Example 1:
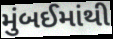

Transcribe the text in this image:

મુંબઈમાંથી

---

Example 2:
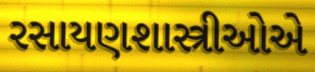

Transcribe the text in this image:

રસાયણશાસ્ત્રીઓએ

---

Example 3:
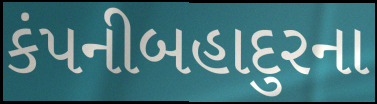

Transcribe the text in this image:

કંપનીબહાદુરના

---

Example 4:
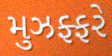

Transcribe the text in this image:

મુઝફ્ફરે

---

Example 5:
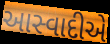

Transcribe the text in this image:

આસ્વાદીએ